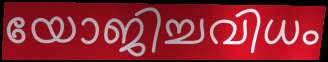
യോജിച്ചവിധം